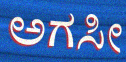
ಅಗಸೀ